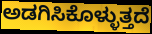
ಅಡಗಿಸಿಕೊಳ್ಳುತ್ತದೆ